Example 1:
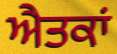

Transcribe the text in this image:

ਐਤਕਾਂ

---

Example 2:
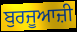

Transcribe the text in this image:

ਬੁਰਜੂਆਜ਼ੀ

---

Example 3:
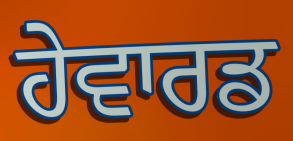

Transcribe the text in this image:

ਹੇਵਾਰਡ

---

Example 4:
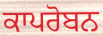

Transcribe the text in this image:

ਕਾਪਰੋਬਨ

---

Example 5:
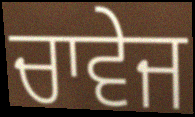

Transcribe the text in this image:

ਚਾਵੇਜ